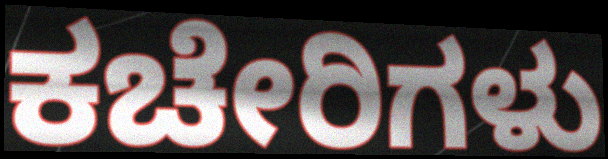
ಕಚೇರಿಗಳು